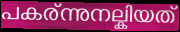
പകര്ന്നുനല്കിയത്